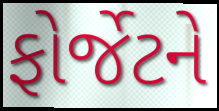
ફોર્જેટને